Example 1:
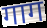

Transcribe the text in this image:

गाग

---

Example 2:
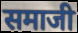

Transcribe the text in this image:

समाजी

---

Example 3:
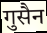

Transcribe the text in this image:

गुसैन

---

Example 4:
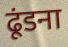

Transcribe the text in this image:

ढूंडना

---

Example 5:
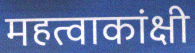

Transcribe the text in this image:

महत्‍वाकांक्षी